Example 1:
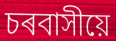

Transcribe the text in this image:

চৰবাসীয়ে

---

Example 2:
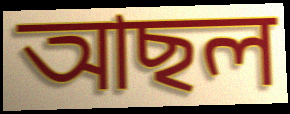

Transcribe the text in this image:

আছল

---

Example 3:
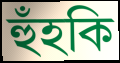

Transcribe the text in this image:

হুঁহকি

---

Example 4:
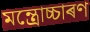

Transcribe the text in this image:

মন্ত্ৰোচ্চাৰণ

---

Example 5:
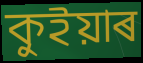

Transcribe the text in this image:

কুইয়াৰ